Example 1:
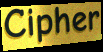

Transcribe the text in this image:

Cipher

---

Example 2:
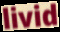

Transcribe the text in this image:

livid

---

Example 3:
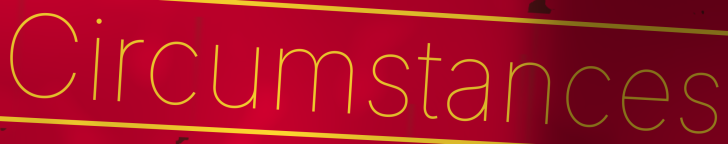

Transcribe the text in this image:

Circumstances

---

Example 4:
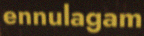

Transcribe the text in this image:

ennulagam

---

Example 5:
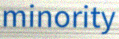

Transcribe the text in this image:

minority